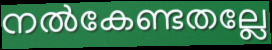
നൽകേണ്ടതല്ലേ